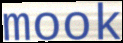
mook